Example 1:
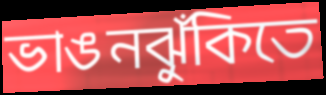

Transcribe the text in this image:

ভাঙনঝুঁকিতে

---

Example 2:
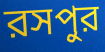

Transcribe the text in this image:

রসপুর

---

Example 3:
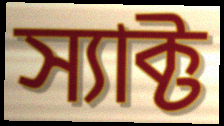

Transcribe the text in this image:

স্যাক্ট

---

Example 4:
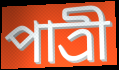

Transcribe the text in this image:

পাত্রী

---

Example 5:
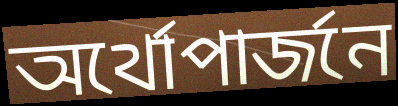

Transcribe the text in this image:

অর্থোপার্জনে